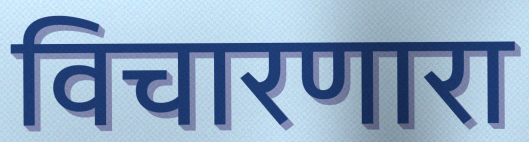
विचारणारा